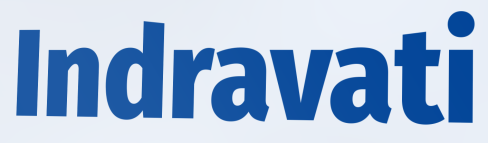
Indravati